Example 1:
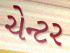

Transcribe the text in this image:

ચેન્ટર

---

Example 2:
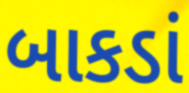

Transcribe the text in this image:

બાકડાં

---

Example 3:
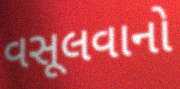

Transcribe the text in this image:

વસૂલવાનો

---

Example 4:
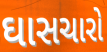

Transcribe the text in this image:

ઘાસચારો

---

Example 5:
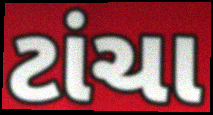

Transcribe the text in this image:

ટાંચા